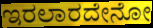
ಇರಲಾರದೇನೋ